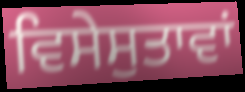
ਵਿਸੇਸੁਤਾਵਾਂ